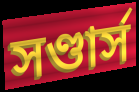
সণ্ডার্স